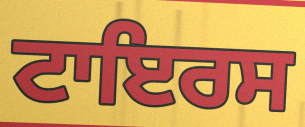
ਟਾਇਰਸ